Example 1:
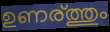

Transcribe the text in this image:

ഉണര്ത്തും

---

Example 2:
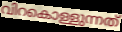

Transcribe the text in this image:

വിറകൊള്ളുന്നത്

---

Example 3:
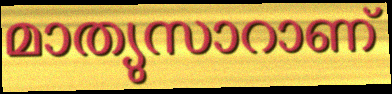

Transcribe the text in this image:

മാത്യുസാറാണ്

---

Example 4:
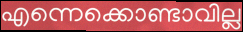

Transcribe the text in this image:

എന്നെക്കൊണ്ടാവില്ല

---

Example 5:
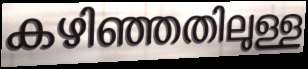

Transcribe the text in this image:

കഴിഞ്ഞതിലുള്ള